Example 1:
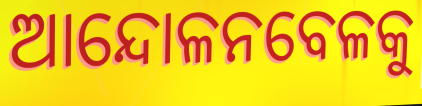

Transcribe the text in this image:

ଆନ୍ଦୋଳନବେଳକୁ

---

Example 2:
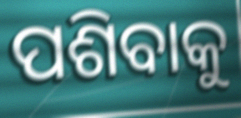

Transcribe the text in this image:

ପଶିବାକୁ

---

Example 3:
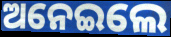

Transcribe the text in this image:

ଅନେଇଲେ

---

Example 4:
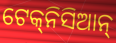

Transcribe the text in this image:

ଟେକ୍‌ନିସିଆନ୍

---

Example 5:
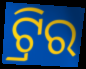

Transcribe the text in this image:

ଟ୍ରିର